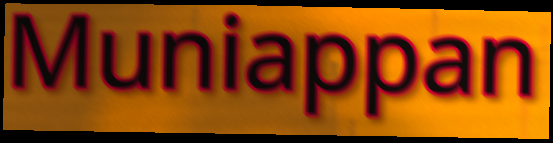
Muniappan